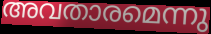
അവതാരമെന്നു